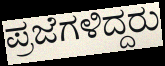
ಪ್ರಜೆಗಳಿದ್ದರು